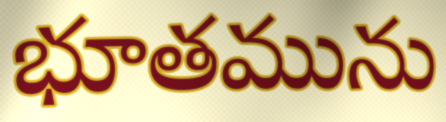
భూతమును